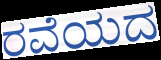
ರವೆಯದ